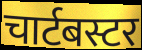
चार्टबस्टर